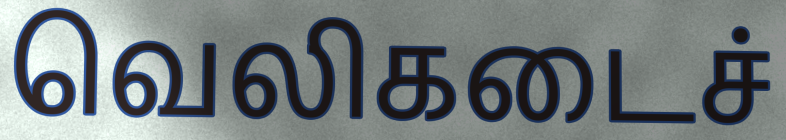
வெலிகடைச்